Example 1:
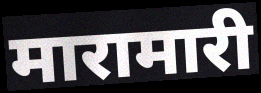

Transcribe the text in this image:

मारामारी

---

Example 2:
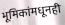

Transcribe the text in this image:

भूमिकांमधूनही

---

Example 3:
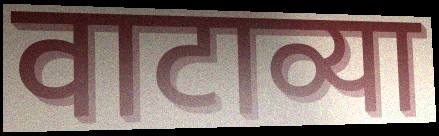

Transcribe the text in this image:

वाटाव्या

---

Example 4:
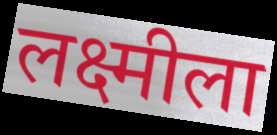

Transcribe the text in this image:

लक्ष्मीला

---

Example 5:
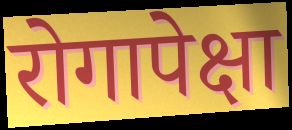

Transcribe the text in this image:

रोगापेक्षा